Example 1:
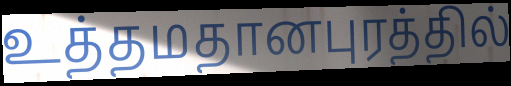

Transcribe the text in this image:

உத்தமதானபுரத்தில்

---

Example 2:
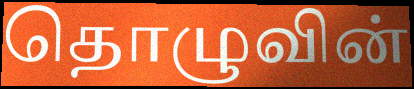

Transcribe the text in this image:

தொழுவின்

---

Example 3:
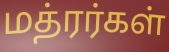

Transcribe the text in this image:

மத்ரர்கள்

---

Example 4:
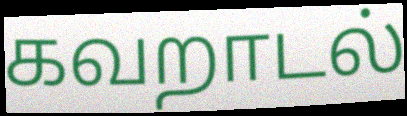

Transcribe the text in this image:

கவறாடல்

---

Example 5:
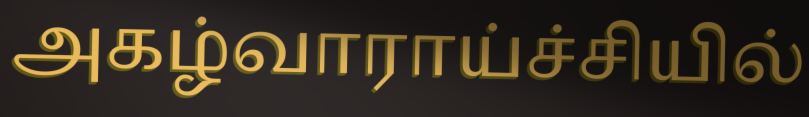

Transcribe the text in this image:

அகழ்வாராய்ச்சியில்